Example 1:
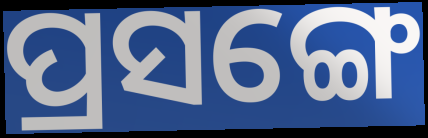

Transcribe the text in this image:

ପ୍ରସଙ୍ଗେ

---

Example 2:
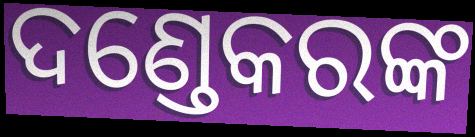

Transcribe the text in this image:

ଦଣ୍ଡେକରଙ୍କ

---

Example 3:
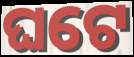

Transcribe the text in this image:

ଘଟେ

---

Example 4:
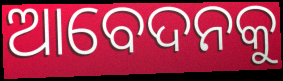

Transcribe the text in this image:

ଆବେଦନକୁ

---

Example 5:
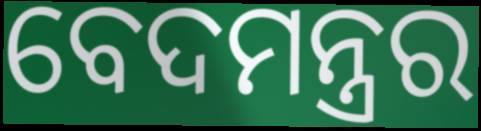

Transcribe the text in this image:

ବେଦମନ୍ତ୍ରର